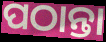
ପଠାନ୍ତା